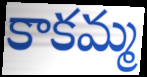
కాకమ్మ